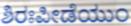
ಶಿರಃಪೀಡೆಯುಂ